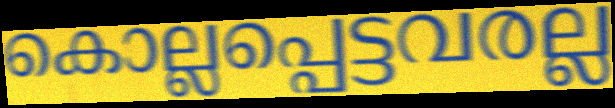
കൊല്ലപ്പെട്ടവരല്ല